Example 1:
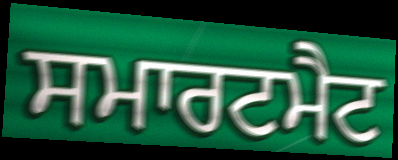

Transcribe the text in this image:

ਸਮਾਰਟਮੈਟ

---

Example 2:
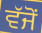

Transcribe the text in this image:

ਵੱਜੋਂ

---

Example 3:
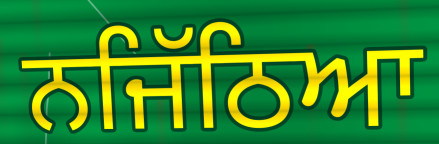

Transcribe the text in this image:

ਨਜਿੱਠਿਆ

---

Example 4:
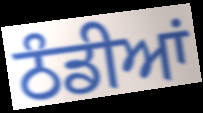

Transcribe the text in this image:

ਠੰਡੀਆਂ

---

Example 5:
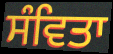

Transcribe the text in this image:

ਸੰਵਿਤਾ